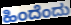
ಹಿಂದೆಂದು